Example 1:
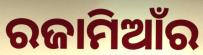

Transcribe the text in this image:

ରଜାମିଆଁର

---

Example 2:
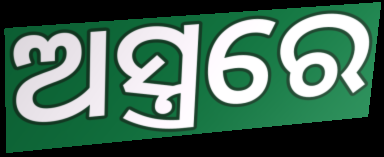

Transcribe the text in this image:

ଅସ୍ତ୍ରରେ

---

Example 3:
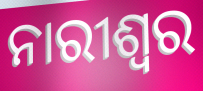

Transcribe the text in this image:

ନାରୀଶ୍ବର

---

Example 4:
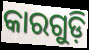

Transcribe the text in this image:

କାରଗୁଡ଼ି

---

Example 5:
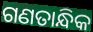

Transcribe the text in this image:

ଗଣତାନ୍ଧିକ